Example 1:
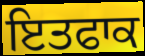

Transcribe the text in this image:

ਇਤਫਾਕ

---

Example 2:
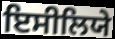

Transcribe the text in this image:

ਇਸੀਲਿਯੇ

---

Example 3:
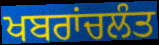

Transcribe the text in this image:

ਖਬਰਾਂਚਲੰਤ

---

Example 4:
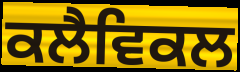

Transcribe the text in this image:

ਕਲੈਵਿਕਲ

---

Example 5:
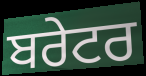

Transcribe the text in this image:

ਬਰੇਟਰ